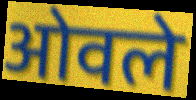
ओवले